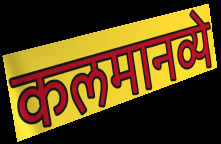
कलमानव्ये